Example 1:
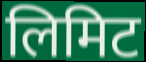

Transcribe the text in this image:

लिमिट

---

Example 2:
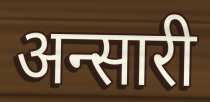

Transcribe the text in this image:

अन्सारी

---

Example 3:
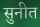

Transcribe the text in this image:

सुनीत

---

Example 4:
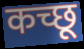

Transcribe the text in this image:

कच्छू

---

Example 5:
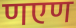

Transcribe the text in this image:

णएण